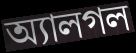
অ্যালগল